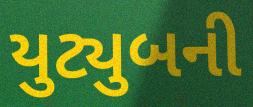
યુટ્યુબની